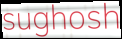
sughosh